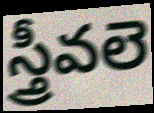
స్త్రీవలె